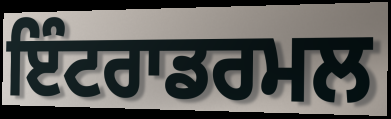
ਇੰਟਰਾਡਰਮਲ